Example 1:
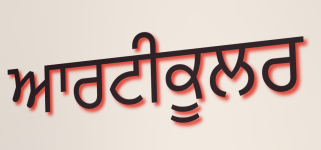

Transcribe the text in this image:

ਆਰਟੀਕੂਲਰ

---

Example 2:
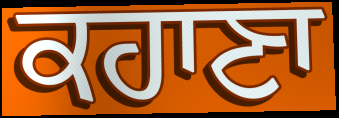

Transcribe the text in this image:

ਕਹਾਣਾ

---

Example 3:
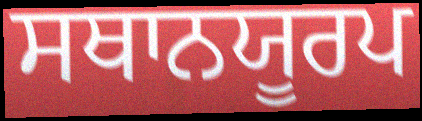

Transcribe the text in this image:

ਸਥਾਨਯੂਰਪ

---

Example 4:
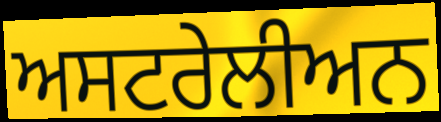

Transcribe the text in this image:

ਅਸਟਰੇਲੀਅਨ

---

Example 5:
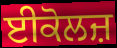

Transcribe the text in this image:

ਈਕੋਲਜ਼